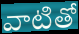
వాటితో